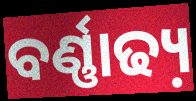
ବର୍ଣ୍ଣାଢ୍ୟ଼